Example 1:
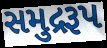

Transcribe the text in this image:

સમુદ્રરૂપ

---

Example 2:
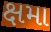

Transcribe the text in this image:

ક્ષમા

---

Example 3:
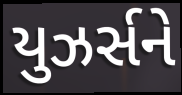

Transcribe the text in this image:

યુઝર્સને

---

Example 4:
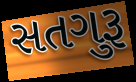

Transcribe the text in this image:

સતગુરૂ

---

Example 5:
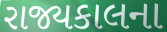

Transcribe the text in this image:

રાજ્યકાલના